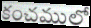
కంచములో